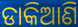
ଡାକିଆଣି